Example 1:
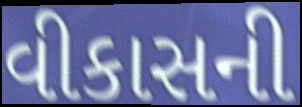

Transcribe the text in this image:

વીકાસની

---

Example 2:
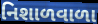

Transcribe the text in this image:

નિશાળવાળા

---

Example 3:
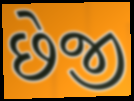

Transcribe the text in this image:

છેજી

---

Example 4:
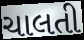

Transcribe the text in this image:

ચાલતી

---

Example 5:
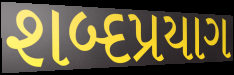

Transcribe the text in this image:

શબ્દપ્રયાગ